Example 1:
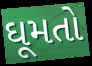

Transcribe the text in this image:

ઘૂમતો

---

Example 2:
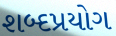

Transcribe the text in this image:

શબ્દપ્રયોગ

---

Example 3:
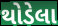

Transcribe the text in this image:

થોડેલા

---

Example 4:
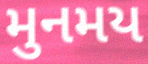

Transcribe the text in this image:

મુનમય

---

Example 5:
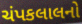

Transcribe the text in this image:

ચંપકલાલનો